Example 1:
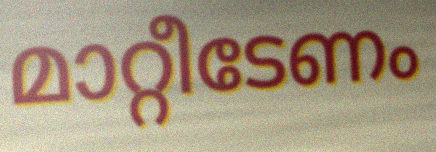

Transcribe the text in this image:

മാറ്റീടേണം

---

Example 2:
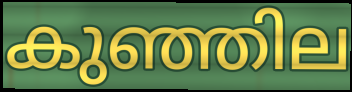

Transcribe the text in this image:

കുഞ്ഞില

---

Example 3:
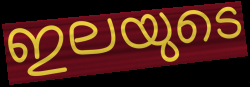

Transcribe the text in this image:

ഇലയുടെ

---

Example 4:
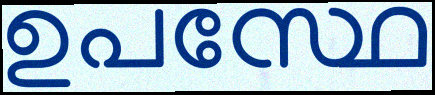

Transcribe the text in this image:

ഉപസ്ഥേ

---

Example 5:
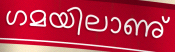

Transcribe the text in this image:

ഗമയിലാണു്